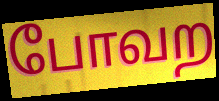
போவற